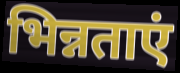
भिन्नताएं